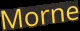
Morne